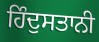
ਹਿੰਦੁਸਤਾਨੀ